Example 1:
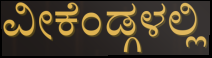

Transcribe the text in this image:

ವೀಕೆಂಡ್ಗಳಲ್ಲಿ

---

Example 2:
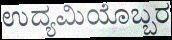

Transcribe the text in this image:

ಉದ್ಯಮಿಯೊಬ್ಬರ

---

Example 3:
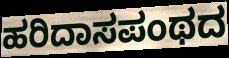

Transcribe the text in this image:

ಹರಿದಾಸಪಂಥದ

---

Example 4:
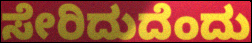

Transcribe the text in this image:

ಸೇರಿದುದೆಂದು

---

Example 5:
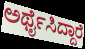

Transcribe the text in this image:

ಅರ್ಥೈಸಿದ್ದಾರೆ